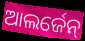
ଆଲର୍ଜେନ୍